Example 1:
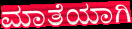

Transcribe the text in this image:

ಮಾತೆಯಾಗಿ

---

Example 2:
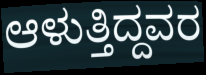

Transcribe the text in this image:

ಆಳುತ್ತಿದ್ದವರ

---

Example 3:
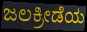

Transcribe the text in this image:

ಜಲಕ್ರೀಡೆಯ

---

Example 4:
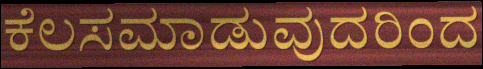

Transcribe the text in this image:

ಕೆಲಸಮಾಡುವುದರಿಂದ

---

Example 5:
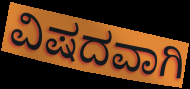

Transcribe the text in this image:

ವಿಷದವಾಗಿ